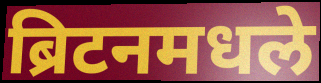
ब्रिटनमधले